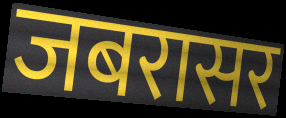
जबरासर